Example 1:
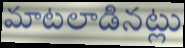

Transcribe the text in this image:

మాటలాడినట్లు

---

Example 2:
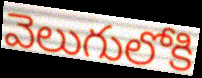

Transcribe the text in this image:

వెలుగులోకి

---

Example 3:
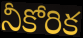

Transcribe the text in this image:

నీకోరిక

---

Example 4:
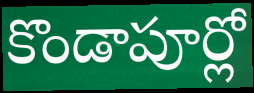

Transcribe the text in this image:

కొండాపూర్లో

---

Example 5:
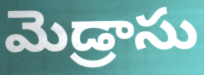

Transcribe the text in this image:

మెడ్రాసు